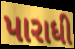
પારાધી